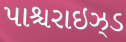
પાશ્ચરાઇઝ્ડ